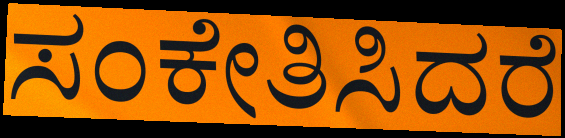
ಸಂಕೇತಿಸಿದರೆ